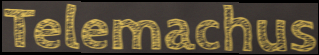
Telemachus